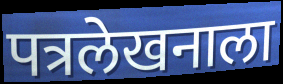
पत्रलेखनाला